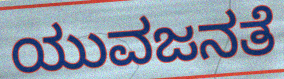
ಯುವಜನತೆ